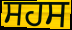
ਸਹਸ